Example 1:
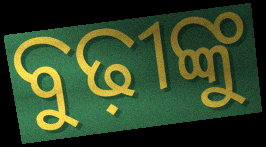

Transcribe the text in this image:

ବୁଢ଼ୀଙ୍କୁ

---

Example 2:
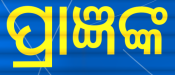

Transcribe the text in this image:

ପ୍ରାଜ୍ଞଙ୍କ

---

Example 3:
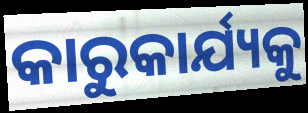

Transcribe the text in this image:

କାରୁକାର୍ଯ୍ୟକୁ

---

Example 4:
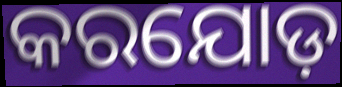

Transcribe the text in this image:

କରଯୋଡ଼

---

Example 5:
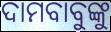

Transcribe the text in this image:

ଦାମବାବୁଙ୍କୁ